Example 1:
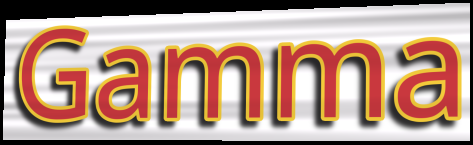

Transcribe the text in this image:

Gamma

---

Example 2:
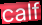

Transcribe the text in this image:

calf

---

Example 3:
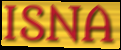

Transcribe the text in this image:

ISNA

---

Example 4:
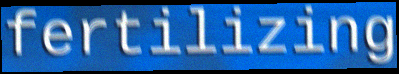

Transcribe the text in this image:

fertilizing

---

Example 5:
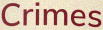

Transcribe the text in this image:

Crimes